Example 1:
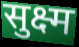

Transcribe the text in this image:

सुक्ष्म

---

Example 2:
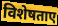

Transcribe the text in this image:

विशेषताए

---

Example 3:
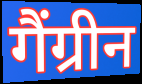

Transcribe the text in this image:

गैंग्रीन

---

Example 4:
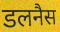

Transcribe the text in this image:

डलनैस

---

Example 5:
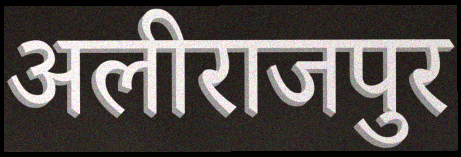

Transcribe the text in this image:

अलीराजपुर